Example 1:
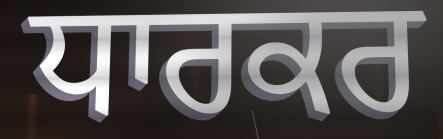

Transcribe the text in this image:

ਧਾਰਕਰ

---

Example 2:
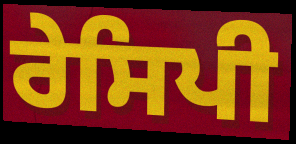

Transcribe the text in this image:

ਰੇਸਿਪੀ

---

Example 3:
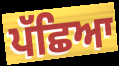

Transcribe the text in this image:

ਪੱਛਿਆ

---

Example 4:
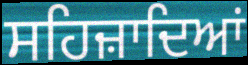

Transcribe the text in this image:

ਸਹਿਜ਼ਾਦਿਆਂ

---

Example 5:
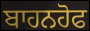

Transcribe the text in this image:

ਬਾਹਨਹੋਫ